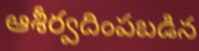
ఆశీర్వదింపబడిన